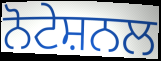
ਨੋਟੇਸ਼ਨਲ